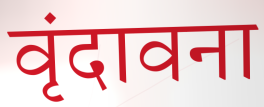
वृंदावना